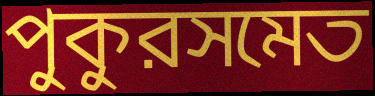
পুকুরসমেত